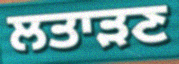
ਲਤਾੜਣ